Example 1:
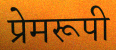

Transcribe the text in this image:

प्रेमरूपी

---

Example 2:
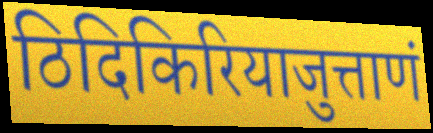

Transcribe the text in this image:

ठिदिकिरियाजुत्ताणं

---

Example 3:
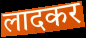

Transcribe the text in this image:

लादकर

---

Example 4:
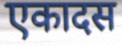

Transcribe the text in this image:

एकादस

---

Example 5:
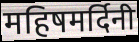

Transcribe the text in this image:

महिषमर्दिनी